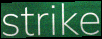
strike